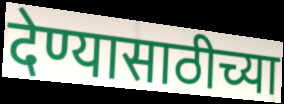
देण्यासाठीच्या